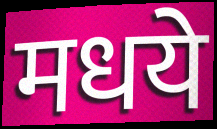
मधये